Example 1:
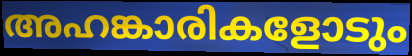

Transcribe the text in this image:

അഹങ്കാരികളോടും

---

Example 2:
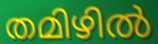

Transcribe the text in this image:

തമിഴിൽ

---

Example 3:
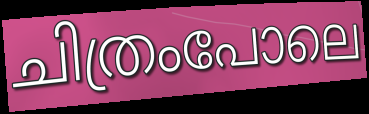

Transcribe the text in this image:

ചിത്രംപോലെ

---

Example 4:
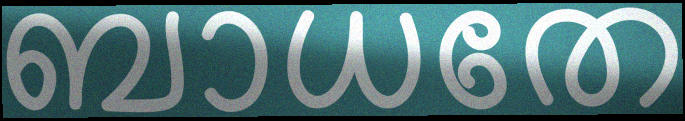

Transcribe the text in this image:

ബാധതേ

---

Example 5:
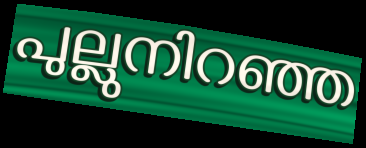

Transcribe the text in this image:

പുല്ലുനിറഞ്ഞ